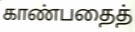
காண்பதைத்